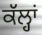
ਕੱਲ੍ਹਾਂ